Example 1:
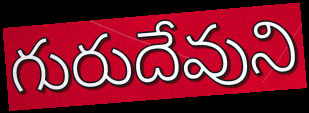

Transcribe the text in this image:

గురుదేవుని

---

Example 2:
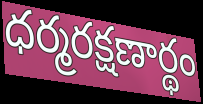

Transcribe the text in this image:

ధర్మరక్షణార్థం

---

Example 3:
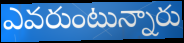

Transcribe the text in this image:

ఎవరుంటున్నారు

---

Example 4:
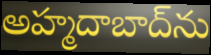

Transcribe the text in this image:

అహ్మదాబాద్‌ను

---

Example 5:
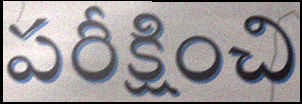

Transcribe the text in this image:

పరీక్షించి